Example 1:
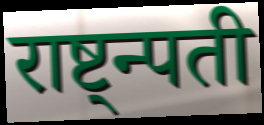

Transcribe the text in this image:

राष्ट्न्पती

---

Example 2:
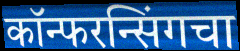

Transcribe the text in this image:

कॉन्फरन्सिंगचा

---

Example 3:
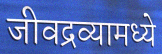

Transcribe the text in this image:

जीवद्रव्यामध्ये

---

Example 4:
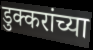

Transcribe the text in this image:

डुक्करांच्या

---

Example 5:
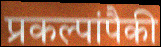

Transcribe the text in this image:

प्रकल्पांपैकी